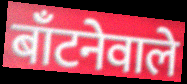
बाँटनेवाले